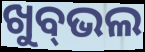
ଖୁବ୍‌ଭଲ